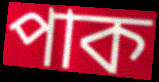
পাক